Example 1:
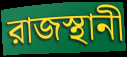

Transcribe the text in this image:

রাজস্থানী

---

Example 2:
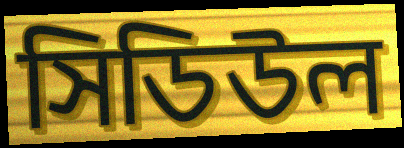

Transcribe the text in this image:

সিডিউল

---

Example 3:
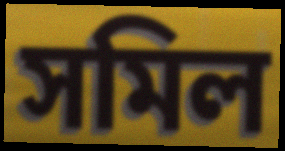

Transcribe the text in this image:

সমিল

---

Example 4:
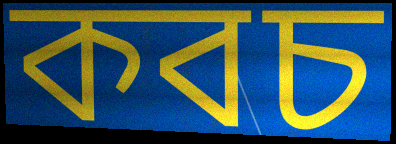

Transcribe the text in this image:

কবচ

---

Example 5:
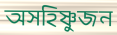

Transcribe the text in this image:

অসহিষ্ণুজন